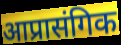
आप्रासंगिक